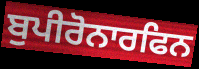
ਬੁਪੀਰੋਨਾਰਫਿਨ